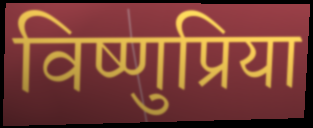
विष्णुप्रिया